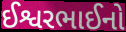
ઈશ્વરભાઈનો